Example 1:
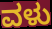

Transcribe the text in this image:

ವಳು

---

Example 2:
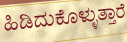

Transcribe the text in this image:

ಹಿಡಿದುಕೊಳ್ಳುತ್ತಾರೆ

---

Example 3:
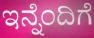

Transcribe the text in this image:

ಇನ್ನೆಂದಿಗೆ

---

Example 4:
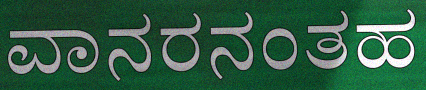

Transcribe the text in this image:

ವಾನರನಂತಹ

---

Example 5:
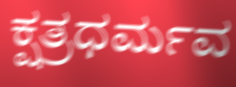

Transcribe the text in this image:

ಕ್ಷತ್ರಧರ್ಮವ